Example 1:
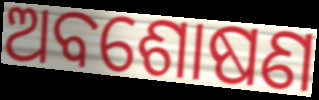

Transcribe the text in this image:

ଅବଶୋଷଣ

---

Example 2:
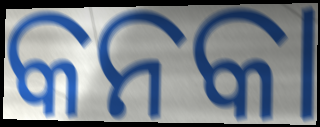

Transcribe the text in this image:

କନକା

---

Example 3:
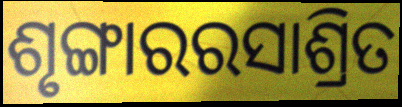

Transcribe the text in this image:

ଶୃଙ୍ଗାରରସାଶ୍ରିତ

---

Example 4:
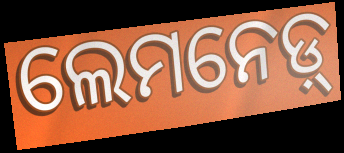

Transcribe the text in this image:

ଲେମନେଡ଼୍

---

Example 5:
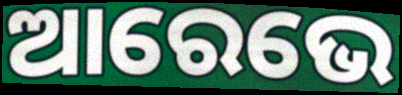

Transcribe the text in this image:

ଆରେଭେ